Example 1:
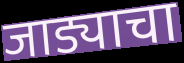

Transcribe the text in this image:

जाड्याचा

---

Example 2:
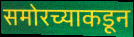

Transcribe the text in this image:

समोरच्याकडून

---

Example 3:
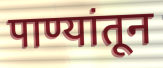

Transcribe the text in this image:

पाण्यांतून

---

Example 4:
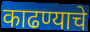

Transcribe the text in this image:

काढण्याचे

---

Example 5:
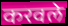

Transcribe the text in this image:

करवले